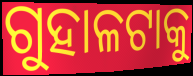
ଗୁହାଳଟାକୁ